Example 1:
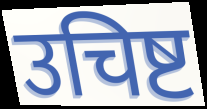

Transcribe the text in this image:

उचिष्ट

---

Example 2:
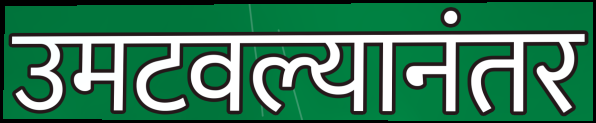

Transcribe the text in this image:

उमटवल्यानंतर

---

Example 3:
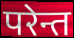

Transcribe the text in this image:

परेन्त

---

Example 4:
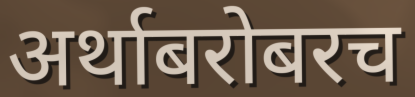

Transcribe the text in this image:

अर्थाबरोबरच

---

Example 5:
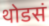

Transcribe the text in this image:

थोडसं